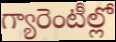
గ్యారెంటీల్లో